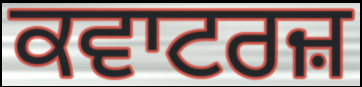
ਕਵਾਟਰਜ਼